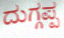
ದುಗ್ಗಪ್ಪ